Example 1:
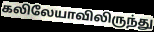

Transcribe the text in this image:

கலிலேயாவிலிருந்து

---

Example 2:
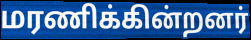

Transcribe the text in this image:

மரணிக்கின்றனர்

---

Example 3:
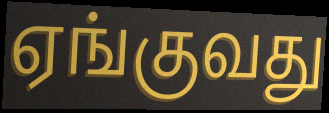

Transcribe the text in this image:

ஏங்குவது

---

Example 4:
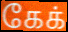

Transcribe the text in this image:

கேக்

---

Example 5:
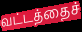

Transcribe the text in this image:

வட்டத்தைச்